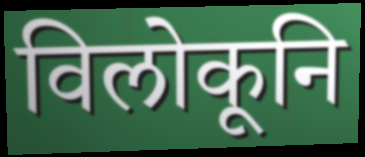
विलोकूनि